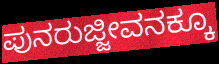
ಪುನರುಜ್ಜೀವನಕ್ಕೂ